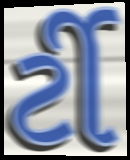
ર્ટી